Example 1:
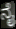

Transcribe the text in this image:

ನೈ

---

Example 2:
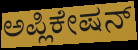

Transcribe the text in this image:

ಅಪ್ಲಿಕೇಷನ್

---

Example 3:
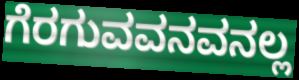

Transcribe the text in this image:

ಗೆರಗುವವನವನಲ್ಲ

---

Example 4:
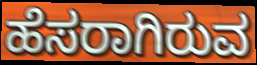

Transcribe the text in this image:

ಹೆಸರಾಗಿರುವ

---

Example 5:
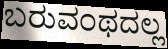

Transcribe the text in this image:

ಬರುವಂಥದಲ್ಲ